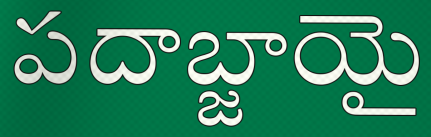
పదాబ్జాయై